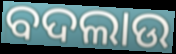
ବଦଲାଉ